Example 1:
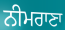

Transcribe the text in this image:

ਨੀਮਰਾਣਾ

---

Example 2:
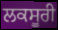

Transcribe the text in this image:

ਲਕਸੂਰੀ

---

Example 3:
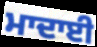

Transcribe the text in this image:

ਮਾਦਾਈ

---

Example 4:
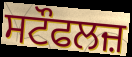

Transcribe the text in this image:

ਸਟੌਫਲਜ਼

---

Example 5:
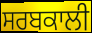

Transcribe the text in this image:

ਸਰਬਕਾਲੀ